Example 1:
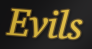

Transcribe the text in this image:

Evils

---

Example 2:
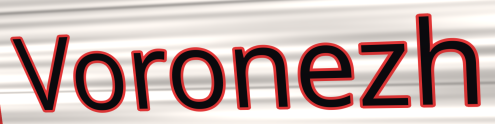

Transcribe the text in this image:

Voronezh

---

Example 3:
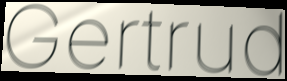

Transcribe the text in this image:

Gertrud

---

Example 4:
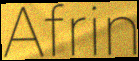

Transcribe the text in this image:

Afrin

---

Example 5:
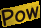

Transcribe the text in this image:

Pow